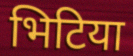
भिटिया